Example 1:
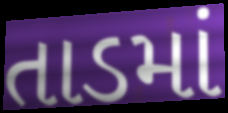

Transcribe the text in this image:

તાડમાં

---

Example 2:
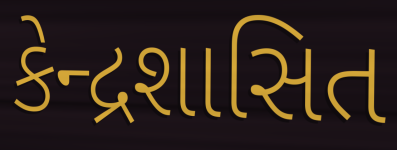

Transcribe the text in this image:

કેન્દ્રશાસિત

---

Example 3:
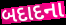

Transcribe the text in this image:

બદાદના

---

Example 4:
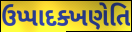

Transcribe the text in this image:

ઉપ્પાદક્ખણેતિ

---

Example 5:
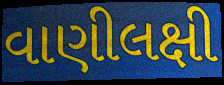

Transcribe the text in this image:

વાણીલક્ષી